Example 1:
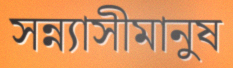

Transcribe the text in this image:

সন্ন্যাসীমানুষ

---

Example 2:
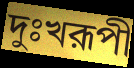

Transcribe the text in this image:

দুঃখরূপী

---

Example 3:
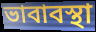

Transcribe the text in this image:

ভাবাবস্থা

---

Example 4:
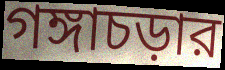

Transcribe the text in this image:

গঙ্গাচড়ার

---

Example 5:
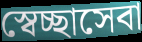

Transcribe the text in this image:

স্বেচ্ছাসেবা